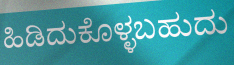
ಹಿಡಿದುಕೊಳ್ಳಬಹುದು